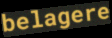
belagere